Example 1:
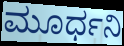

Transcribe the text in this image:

ಮೂರ್ಧನಿ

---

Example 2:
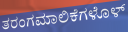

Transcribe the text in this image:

ತರಂಗಮಾಲಿಕೆಗಳೊಳ್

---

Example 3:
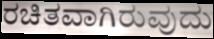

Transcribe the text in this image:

ರಚಿತವಾಗಿರುವುದು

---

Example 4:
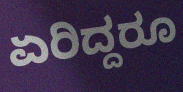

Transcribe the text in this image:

ಏರಿದ್ದರೂ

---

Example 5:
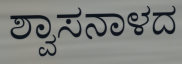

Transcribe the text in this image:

ಶ್ವಾಸನಾಳದ